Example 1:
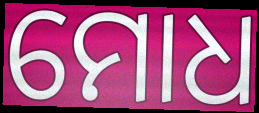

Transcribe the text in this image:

ମୋଧ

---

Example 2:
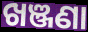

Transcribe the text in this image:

ଖଞ୍ଜଣା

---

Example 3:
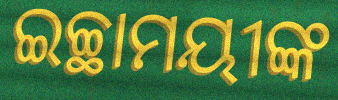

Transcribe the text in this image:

ଇଚ୍ଛାମୟୀଙ୍କ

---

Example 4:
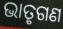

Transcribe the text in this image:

ଭାତୃଗଣ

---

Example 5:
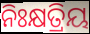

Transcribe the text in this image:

ନିଃକ୍ଷତ୍ରିୟ